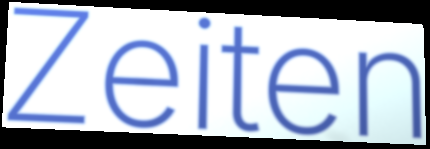
Zeiten